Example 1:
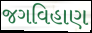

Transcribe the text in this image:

જગવિહાણ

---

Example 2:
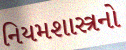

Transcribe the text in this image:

નિયમશાસ્ત્રનો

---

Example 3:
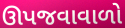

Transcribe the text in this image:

ઊપજવાવાળો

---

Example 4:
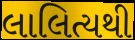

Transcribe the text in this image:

લાલિત્યથી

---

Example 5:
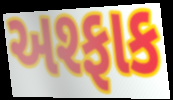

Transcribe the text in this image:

અશ્ફાક